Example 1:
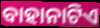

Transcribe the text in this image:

ବାହାନାଟିଏ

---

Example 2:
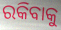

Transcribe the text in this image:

ରକିବାକୁ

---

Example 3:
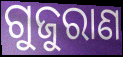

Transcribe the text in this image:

ଗୁଜୁରାଣ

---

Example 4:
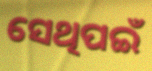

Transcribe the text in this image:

ସେଥିପଇଁ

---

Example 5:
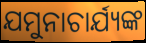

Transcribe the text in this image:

ଯମୁନାଚାର୍ଯ୍ୟଙ୍କ